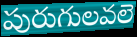
పురుగులవలె